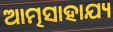
ଆତ୍ମସାହାଯ୍ୟ